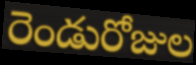
రెండురోజుల